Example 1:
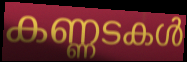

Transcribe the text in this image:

കണ്ണടകൾ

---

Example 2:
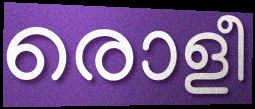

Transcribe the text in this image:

രൊളീ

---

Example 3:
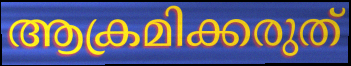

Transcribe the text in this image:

ആക്രമിക്കരുത്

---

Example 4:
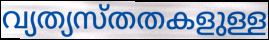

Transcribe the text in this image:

വ്യത്യസ്തതകളുള്ള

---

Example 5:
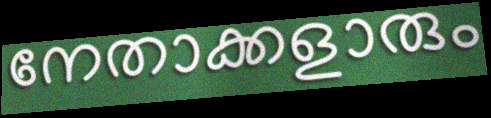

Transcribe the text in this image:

നേതാക്കളാരും